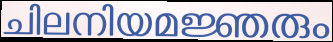
ചിലനിയമജ്ഞരും